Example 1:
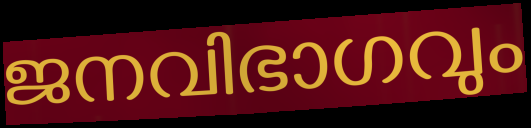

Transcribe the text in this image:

ജനവിഭാഗവും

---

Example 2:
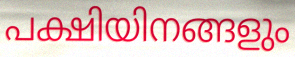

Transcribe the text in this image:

പക്ഷിയിനങ്ങളും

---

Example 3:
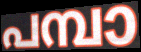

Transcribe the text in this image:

പമ്പാ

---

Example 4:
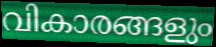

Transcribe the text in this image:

വികാരങ്ങളും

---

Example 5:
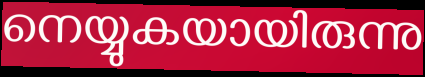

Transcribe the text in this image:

നെയ്യുകയായിരുന്നു